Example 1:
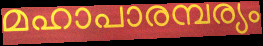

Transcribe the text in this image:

മഹാപാരമ്പര്യം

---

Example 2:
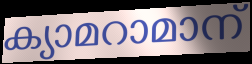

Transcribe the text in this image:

ക്യാമറാമാന്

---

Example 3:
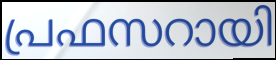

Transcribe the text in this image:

പ്രഫസറായി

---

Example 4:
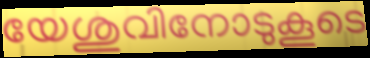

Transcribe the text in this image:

യേശുവിനോടുകൂടെ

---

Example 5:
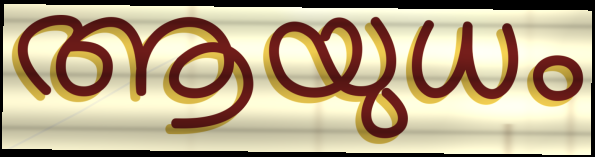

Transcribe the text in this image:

ആയുധം